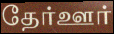
தேர்ஊர்